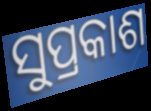
ସୁପ୍ରକାଶ